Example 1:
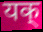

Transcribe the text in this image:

यक्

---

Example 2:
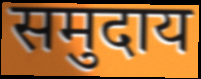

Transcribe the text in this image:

समुदाय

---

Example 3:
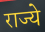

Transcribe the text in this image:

राज्ये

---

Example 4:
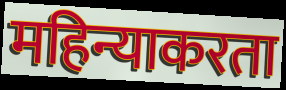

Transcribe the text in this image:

महिन्याकरता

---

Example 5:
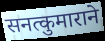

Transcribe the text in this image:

सनत्कुमाराने